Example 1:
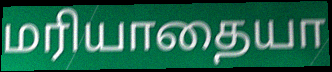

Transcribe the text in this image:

மரியாதையா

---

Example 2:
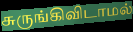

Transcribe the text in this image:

சுருங்கிவிடாமல்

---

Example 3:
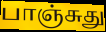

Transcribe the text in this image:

பாஞ்சுது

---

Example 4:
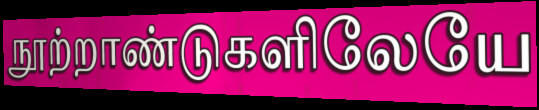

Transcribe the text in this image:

நூற்றாண்டுகளிலேயே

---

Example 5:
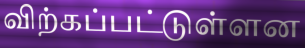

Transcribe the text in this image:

விற்கப்பட்டுள்ளன